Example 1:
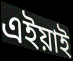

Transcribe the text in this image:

এইয়াই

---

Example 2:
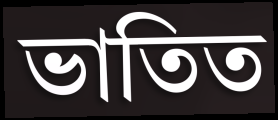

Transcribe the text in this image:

ভাতিত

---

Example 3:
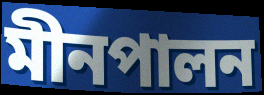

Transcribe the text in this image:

মীনপালন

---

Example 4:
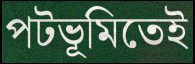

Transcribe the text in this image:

পটভূমিতেই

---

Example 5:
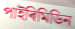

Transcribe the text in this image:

পাইৰিমিডিন